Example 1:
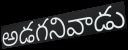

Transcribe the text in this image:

అడగనివాడు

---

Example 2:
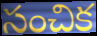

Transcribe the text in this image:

సంచిక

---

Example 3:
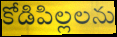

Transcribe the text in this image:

కోడిపిల్లలను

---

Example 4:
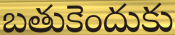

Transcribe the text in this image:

బతుకెందుకు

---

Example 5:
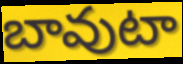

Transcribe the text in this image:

బావుటా